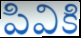
పివికి